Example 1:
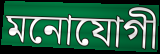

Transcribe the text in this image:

মনোযোগী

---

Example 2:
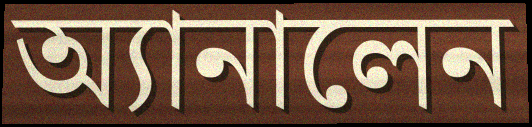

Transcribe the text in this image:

অ্যানালেন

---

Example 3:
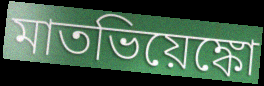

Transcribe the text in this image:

মাতভিয়েঙ্কো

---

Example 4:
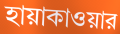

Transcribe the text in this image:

হায়াকাওয়ার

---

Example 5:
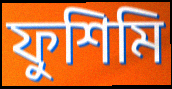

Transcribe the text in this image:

ফুশিমি